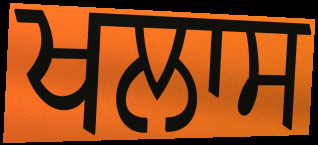
ਖਲਾਸ